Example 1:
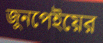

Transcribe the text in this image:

জুনপেইয়ের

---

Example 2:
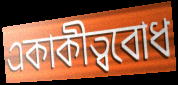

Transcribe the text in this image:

একাকীত্ববোধ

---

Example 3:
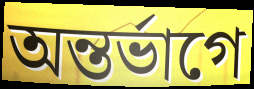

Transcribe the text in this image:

অন্তর্ভাগে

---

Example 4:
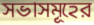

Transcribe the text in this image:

সভাসমূহের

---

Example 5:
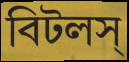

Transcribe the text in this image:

বিটলস্